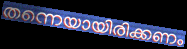
തന്നെയായിരിക്കണം